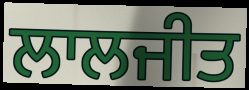
ਲਾਲਜੀਤ